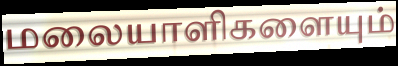
மலையாளிகளையும்